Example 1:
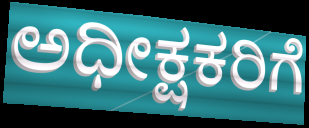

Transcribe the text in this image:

ಅಧೀಕ್ಷಕರಿಗೆ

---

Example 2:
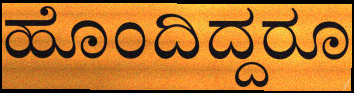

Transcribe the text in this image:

ಹೊಂದಿದ್ದರೂ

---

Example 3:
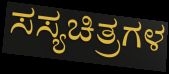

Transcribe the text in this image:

ಸಸ್ಯಚಿತ್ರಗಳ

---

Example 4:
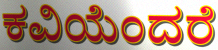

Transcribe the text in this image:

ಕವಿಯೆಂದರೆ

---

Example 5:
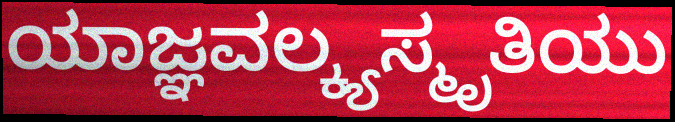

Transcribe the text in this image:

ಯಾಜ್ಞವಲ್ಕ್ಯಸ್ಮೃತಿಯು